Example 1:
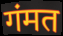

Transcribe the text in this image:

गंमत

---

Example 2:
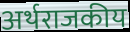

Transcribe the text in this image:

अर्थराजकीय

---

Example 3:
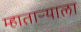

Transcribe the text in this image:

म्हाताऱ्याला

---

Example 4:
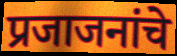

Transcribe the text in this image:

प्रजाजनांचे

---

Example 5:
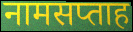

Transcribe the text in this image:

नामसप्ताह